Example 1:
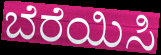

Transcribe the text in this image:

ಬೆರೆಯಿಸಿ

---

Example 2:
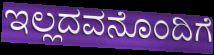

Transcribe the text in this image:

ಇಲ್ಲದವನೊಂದಿಗೆ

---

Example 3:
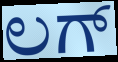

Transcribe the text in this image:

ಲಗ್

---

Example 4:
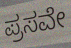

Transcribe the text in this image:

ಪ್ರಸವೇ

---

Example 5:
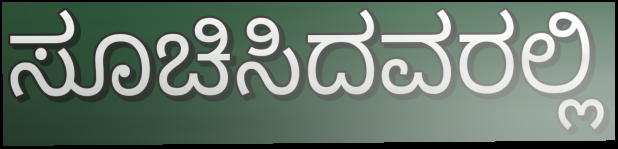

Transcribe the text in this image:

ಸೂಚಿಸಿದವರಲ್ಲಿ